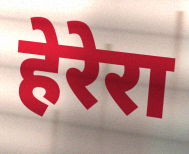
हेरेरा